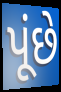
પૂંછે